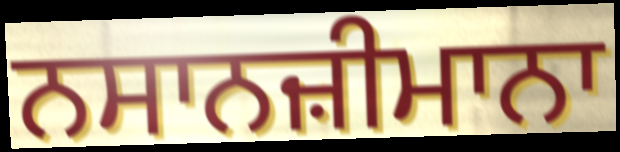
ਨਸਾਨਜ਼ੀਮਾਨਾ